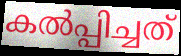
കൽപ്പിച്ചത്